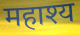
महाश्य